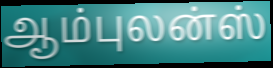
ஆம்புலன்ஸ்